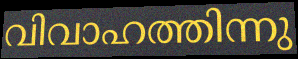
വിവാഹത്തിന്നു